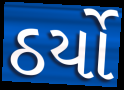
ઠર્યો